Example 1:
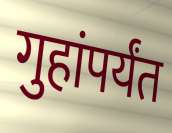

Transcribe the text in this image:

गुहांपर्यंत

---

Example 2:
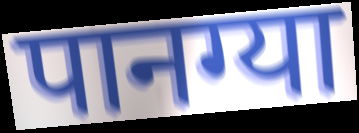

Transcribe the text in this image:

पानग्या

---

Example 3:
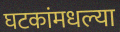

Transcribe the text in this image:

घटकांमधल्या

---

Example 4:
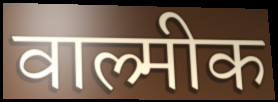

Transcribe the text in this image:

वाल्मीक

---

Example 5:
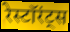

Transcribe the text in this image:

रेस्टॉरंट्‌स